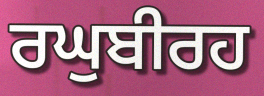
ਰਘੁਬੀਰਹ